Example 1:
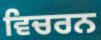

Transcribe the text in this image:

ਵਿਚਰਨ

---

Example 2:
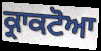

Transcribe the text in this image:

ਕ੍ਰਾਕਟੋਆ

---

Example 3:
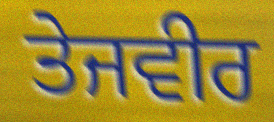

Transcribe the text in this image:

ਤੇਜਵੀਰ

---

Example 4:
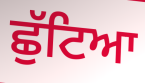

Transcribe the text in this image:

ਛੁੱਟਿਆ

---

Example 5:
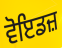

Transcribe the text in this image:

ਵੋਇਡਜ਼